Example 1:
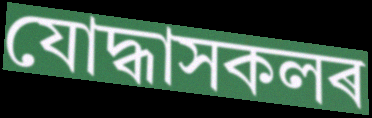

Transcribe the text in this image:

যোদ্ধাসকলৰ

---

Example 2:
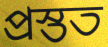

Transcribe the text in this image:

প্ৰস্তত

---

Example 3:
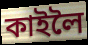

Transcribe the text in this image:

কাইলৈ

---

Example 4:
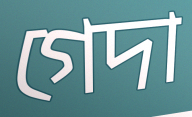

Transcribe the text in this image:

গেদা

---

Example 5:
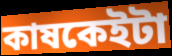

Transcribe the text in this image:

কাষকেইটা